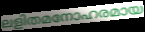
ലളിതമനോഹരമായ